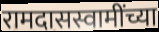
रामदासस्वामींच्या